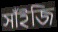
সাঁইজি